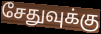
சேதுவுக்கு